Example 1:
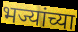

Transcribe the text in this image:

भज्यांच्या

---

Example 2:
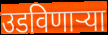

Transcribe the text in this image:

उडविणार्‍या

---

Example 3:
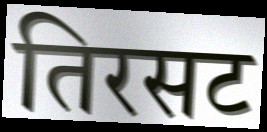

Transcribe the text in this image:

तिरसट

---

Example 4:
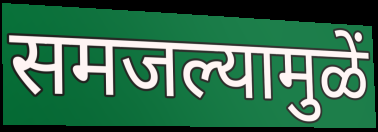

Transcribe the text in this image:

समजल्यामुळें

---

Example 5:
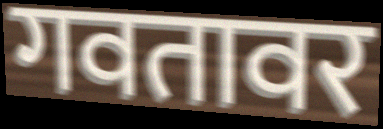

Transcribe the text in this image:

गवतावर